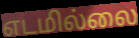
எடமில்லை